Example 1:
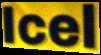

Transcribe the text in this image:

Icel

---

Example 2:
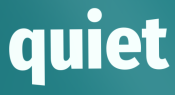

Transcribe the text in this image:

quiet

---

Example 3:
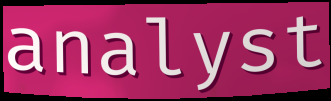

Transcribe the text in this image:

analyst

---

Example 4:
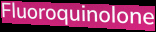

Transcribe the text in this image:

Fluoroquinolone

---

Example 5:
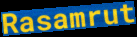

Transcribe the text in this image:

Rasamrut